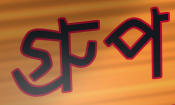
গ্রুপ